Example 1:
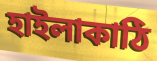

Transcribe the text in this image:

হাইলাকাঠি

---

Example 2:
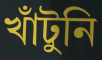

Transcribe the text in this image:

খাঁটুনি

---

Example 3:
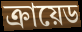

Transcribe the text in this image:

ক্রায়েড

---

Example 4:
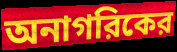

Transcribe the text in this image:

অনাগরিকের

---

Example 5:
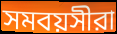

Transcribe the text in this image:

সমবয়সীরা